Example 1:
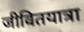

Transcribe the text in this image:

जीवितयात्रा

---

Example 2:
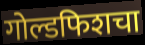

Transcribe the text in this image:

गोल्डफिशचा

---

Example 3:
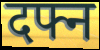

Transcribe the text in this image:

दफ्न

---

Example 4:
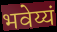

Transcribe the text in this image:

भवेय्यं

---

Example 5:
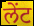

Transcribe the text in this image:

लेंट